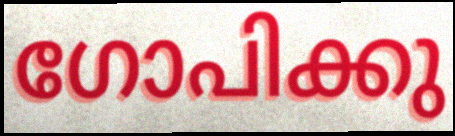
ഗോപിക്കു